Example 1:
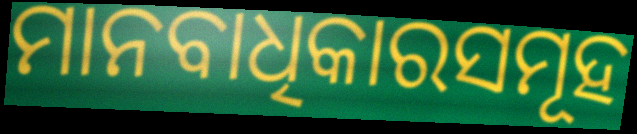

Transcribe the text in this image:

ମାନବାଧିକାରସମୂହ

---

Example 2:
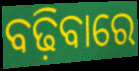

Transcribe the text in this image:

ବଢ଼ିବାରେ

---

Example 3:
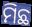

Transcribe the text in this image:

ମିଛ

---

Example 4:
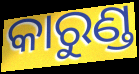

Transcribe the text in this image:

କାରୁଣ୍ଡ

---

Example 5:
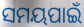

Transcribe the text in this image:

ସମୟପାଇଁ